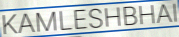
KAMLESHBHAI